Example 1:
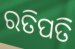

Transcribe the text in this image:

ରତିପତି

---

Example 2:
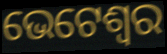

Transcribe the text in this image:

ଭେଟେଶ୍ୱର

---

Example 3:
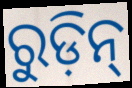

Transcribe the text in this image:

ରୁଡ଼ିନ୍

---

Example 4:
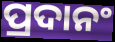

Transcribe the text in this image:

ପ୍ରଦାନଂ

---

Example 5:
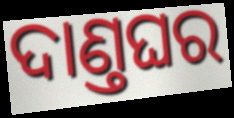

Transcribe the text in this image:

ଦାଣ୍ତଘର